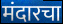
मंदारचा